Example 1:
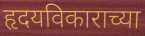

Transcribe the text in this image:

हृदयविकाराच्या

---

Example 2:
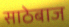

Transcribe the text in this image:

साठेबाज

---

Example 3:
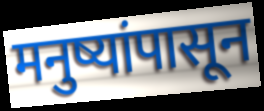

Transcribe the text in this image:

मनुष्यांपासून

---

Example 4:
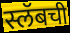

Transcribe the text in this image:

स्लॅबची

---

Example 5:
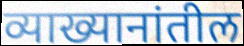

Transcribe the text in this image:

व्याख्यानांतील